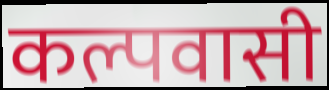
कल्पवासी